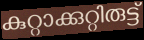
കുറ്റാക്കുറ്റിരുട്ട്